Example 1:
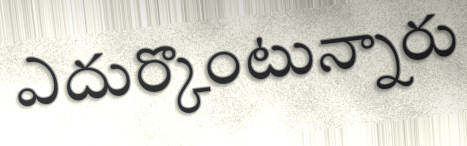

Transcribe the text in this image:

ఎదుర్కొంటున్నారు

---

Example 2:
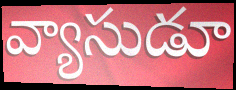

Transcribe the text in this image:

వ్యాసుడూ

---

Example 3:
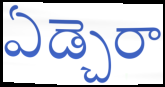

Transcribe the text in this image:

ఏడ్చెరా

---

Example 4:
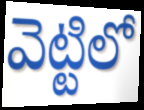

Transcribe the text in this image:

వెట్టిలో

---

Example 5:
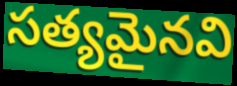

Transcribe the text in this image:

సత్యమైనవి